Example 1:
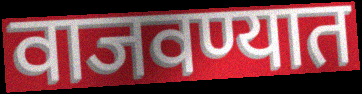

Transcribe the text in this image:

वाजवण्यात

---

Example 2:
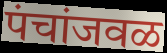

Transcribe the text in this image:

पंचांजवळ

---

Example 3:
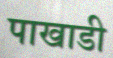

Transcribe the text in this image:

पाखाडी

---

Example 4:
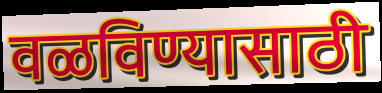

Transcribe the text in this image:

वळविण्यासाठी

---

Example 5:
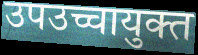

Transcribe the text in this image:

उपउच्चायुक्त